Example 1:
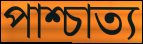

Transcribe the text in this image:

পাশ্চাত্য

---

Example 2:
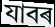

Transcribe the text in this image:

যাবৰ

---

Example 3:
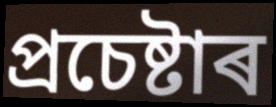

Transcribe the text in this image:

প্ৰচেষ্টাৰ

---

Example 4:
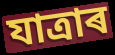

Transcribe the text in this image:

যাত্ৰাৰ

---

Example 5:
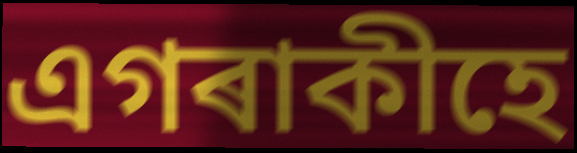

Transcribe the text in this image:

এগৰাকীহে